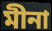
মীনা